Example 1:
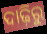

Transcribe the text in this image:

ଦାଢ଼ିରୁ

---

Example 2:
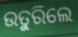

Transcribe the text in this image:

ଉତୁରିଲେ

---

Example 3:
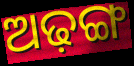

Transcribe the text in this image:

ଅଢ଼ଙ୍ଗ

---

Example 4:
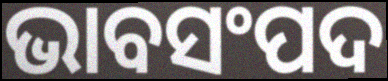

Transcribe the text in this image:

ଭାବସଂପଦ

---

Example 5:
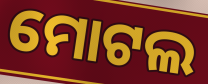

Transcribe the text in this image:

ମୋଟଲ